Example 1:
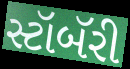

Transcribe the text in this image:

સ્ટૉબૅરી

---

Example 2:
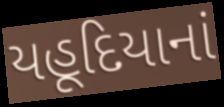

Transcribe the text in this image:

યહૂદિયાનાં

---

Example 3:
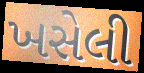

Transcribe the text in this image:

ખસેલી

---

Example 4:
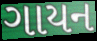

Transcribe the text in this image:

ગાયન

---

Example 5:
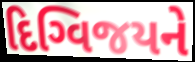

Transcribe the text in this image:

દિગ્વિજયને